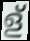
ള്